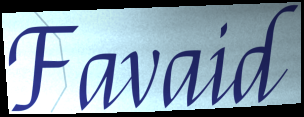
Favaid